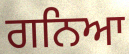
ਗਨਿਆ